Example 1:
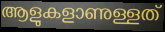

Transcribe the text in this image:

ആളുകളാണുള്ളത്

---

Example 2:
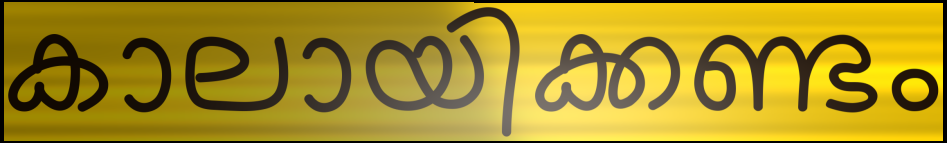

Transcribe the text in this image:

കാലായിക്കണ്ടം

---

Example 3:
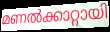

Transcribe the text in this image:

മണൽക്കാറ്റായി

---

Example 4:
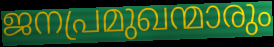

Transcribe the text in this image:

ജനപ്രമുഖന്മാരും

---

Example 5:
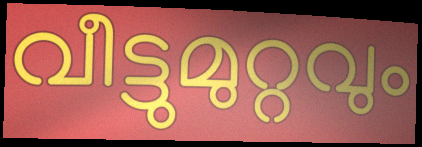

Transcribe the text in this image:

വീട്ടുമുറ്റവും